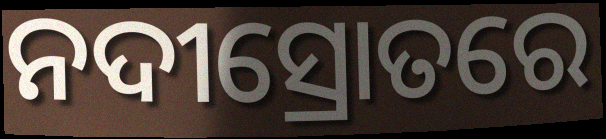
ନଦୀସ୍ରୋତରେ